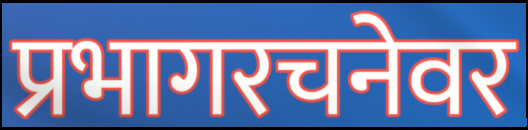
प्रभागरचनेवर